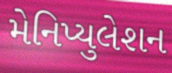
મેનિપ્યુલેશન